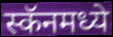
स्कॅनमध्ये